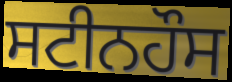
ਸਟੀਨਹੌਸ